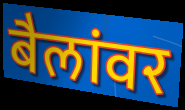
बैलांवर